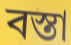
বস্তা